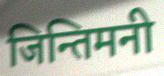
जिन्तिमनी